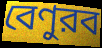
বেণুরব